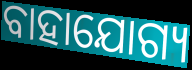
ବାହାଯୋଗ୍ୟ